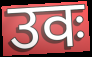
उवः